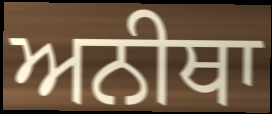
ਅਨੀਥਾ